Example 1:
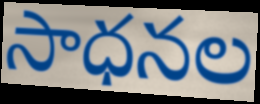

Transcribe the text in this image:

సాధనల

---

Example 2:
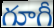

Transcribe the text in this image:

గూగీ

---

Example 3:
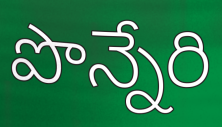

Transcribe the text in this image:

పొన్నేరి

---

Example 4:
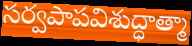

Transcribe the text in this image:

సర్వపాపవిశుద్ధాత్మా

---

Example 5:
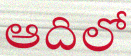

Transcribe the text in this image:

ఆదిలో